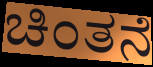
ಚಿಂತನೆ